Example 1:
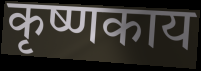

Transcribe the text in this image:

कृष्णकाय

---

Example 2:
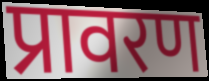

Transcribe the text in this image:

प्रावरण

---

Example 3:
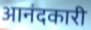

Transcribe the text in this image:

आनंदकारी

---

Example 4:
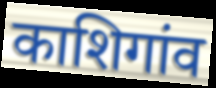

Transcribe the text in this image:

काशिगांव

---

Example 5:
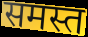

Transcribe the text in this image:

समस्त